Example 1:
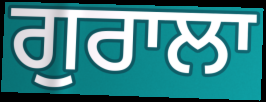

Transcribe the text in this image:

ਗੁਰਾਲਾ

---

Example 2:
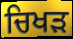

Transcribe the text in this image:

ਚਿਖੜ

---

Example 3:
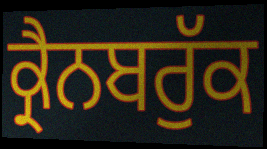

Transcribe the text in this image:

ਕ੍ਰੈਨਬਰੁੱਕ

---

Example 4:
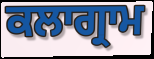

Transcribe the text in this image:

ਕਲਾਗ੍ਰਾਮ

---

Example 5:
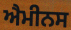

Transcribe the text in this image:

ਐਮੀਨਸ